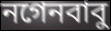
নগেনবাবু